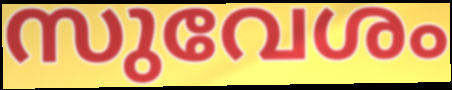
സുവേശം